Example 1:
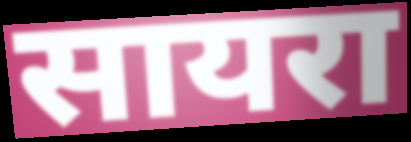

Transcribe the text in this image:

सायरा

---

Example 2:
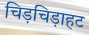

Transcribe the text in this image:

चिड़चिड़ाहट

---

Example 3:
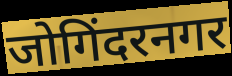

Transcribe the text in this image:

जोगिंदरनगर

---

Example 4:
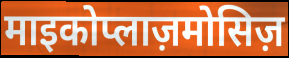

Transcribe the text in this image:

माइकोप्लाज़मोसिज़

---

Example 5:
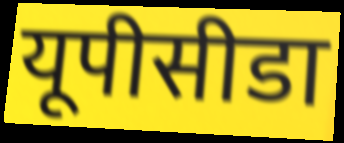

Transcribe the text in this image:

यूपीसीडा